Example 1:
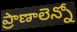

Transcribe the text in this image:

ప్రాణాలెన్నో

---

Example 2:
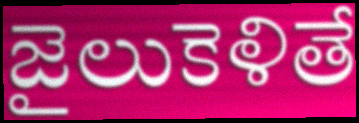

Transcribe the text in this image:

జైలుకెళితే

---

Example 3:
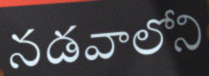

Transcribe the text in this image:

నడవాలోని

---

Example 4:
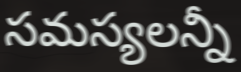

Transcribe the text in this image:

సమస్యలన్నీ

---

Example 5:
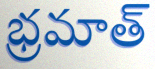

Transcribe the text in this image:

భ్రమాత్